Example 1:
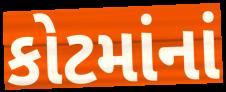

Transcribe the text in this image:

કોટમાંનાં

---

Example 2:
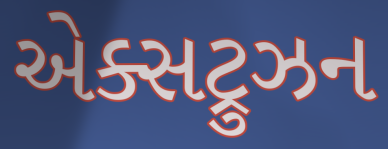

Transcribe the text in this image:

એક્સટ્રુઝન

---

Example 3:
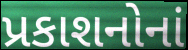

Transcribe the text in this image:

પ્રકાશનોનાં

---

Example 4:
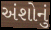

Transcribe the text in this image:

અંશોનું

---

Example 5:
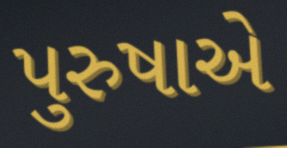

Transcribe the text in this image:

પુરુષાએ